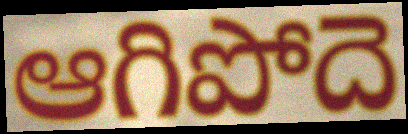
ఆగిపోదె